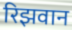
रिझवान